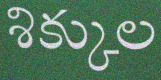
శిక్కుల